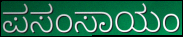
ಪಸಂಸಾಯಂ